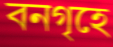
বনগৃহে